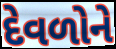
દેવળોને